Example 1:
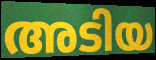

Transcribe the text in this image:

അടിയ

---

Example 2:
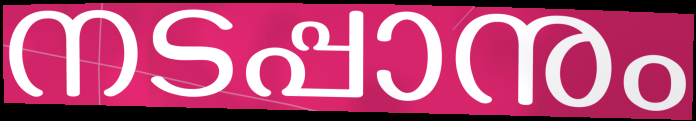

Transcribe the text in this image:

നടപ്പാനും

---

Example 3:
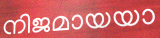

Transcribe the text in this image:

നിജമായയാ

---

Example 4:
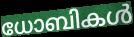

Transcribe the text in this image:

ധോബികൾ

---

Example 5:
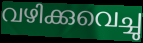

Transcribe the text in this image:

വഴിക്കുവെച്ചു